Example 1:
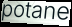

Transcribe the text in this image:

potane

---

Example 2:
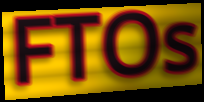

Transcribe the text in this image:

FTOs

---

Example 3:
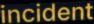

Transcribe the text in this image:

incident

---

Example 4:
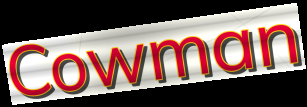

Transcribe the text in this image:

Cowman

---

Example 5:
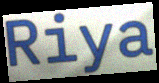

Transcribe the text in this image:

Riya